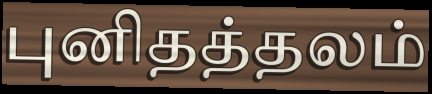
புனிதத்தலம்